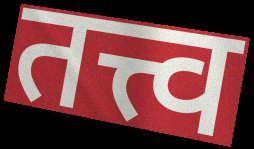
तत्त्व